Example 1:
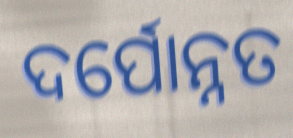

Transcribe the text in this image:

ଦର୍ପୋନ୍ନତ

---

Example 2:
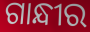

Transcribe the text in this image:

ଗାନ୍ଧୀର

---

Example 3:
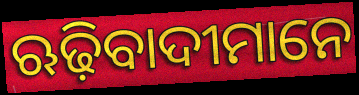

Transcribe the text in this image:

ଋଢ଼ିବାଦୀମାନେ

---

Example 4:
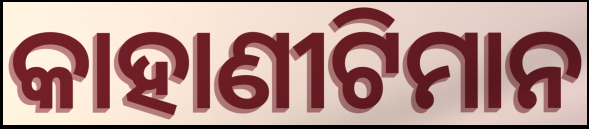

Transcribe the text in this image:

କାହାଣୀଟିମାନ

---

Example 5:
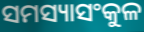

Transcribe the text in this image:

ସମସ୍ୟାସଂକୁଳ